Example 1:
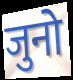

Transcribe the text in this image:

जुनो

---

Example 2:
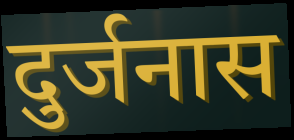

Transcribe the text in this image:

दुर्जनास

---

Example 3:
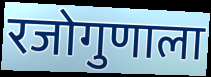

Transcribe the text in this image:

रजोगुणाला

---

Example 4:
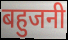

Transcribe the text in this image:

बहुजनी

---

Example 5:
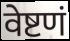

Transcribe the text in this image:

वेष्टणं